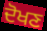
ਦੋਖਣ